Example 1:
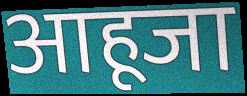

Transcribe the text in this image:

आहूजा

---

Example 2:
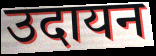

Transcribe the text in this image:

उदायन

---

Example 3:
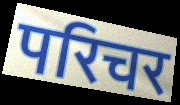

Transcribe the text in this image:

परिचर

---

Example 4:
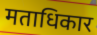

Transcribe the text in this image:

मताधिकार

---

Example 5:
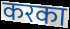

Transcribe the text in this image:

करका